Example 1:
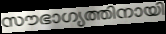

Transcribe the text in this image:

സൗഭാഗ്യത്തിനായി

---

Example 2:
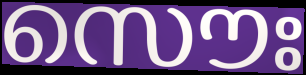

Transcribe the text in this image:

സൌഃ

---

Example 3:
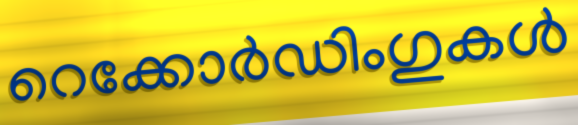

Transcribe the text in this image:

റെക്കോർഡിംഗുകൾ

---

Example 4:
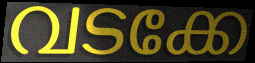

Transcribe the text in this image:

വടക്കേ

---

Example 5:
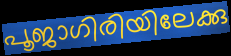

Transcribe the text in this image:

പൂജാഗിരിയിലേക്കു